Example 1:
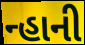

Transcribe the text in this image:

ન્હાની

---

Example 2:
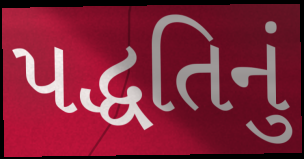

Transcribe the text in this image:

પદ્ધતિનું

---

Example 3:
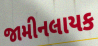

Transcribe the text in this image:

જામીનલાયક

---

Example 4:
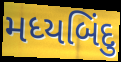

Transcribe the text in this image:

મધ્યબિંદુ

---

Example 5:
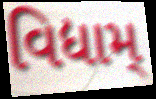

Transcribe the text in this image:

વિદ્યામ્